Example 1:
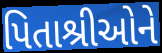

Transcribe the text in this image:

પિતાશ્રીઓને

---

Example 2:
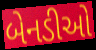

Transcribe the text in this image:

બેનડીઓ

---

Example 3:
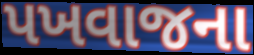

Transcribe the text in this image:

પખવાજના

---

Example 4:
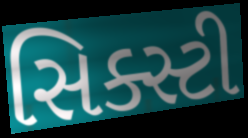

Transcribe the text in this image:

સિક્સ્ટી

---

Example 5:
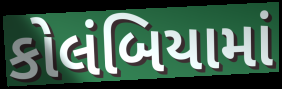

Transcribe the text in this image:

કોલંબિયામાં